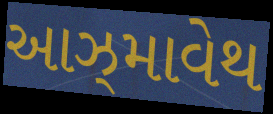
આઝ્માવેથ